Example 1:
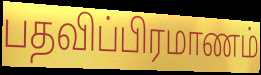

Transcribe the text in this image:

பதவிப்பிரமாணம்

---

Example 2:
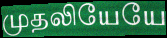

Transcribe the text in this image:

முதலியேயே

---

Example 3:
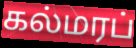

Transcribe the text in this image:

கல்மரப்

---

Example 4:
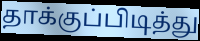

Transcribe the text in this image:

தாக்குப்பிடித்து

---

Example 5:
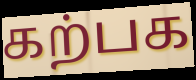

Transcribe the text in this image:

கற்பக